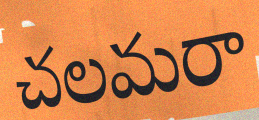
చలమరా